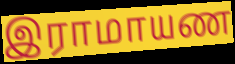
இராமாயண